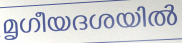
മൃഗീയദശയിൽ